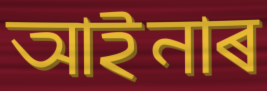
আইনাৰ